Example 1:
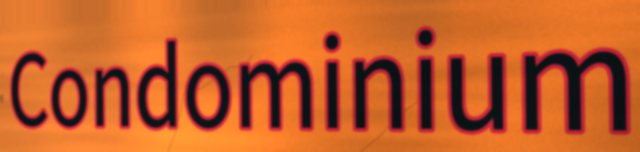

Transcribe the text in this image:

Condominium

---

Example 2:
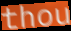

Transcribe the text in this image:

thou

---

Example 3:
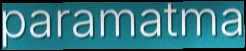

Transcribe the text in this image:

paramatma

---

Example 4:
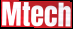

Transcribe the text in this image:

Mtech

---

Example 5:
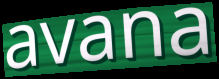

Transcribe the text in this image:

avana